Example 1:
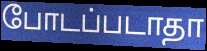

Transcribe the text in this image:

போடப்படாதா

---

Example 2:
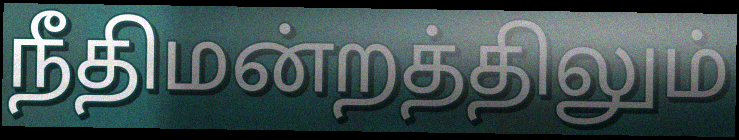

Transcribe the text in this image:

நீதிமன்றத்திலும்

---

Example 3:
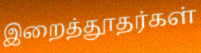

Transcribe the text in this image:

இறைத்தூதர்கள்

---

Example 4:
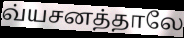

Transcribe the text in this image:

வ்யசனத்தாலே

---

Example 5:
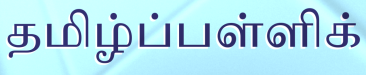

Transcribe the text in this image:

தமிழ்ப்பள்ளிக்